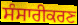
ਸੰਸਾਰੀਕਰਣ